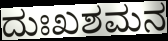
ದುಃಖಶಮನ